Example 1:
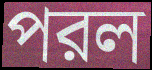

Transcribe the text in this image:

পরল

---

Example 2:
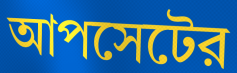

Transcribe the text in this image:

আপসেটের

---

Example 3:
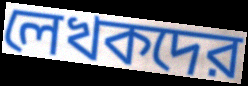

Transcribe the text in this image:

লেখকদের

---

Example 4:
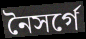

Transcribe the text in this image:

নৈসর্গে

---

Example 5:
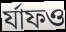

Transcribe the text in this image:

র্যাফও